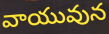
వాయువున